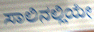
ಸಾಲಿನಲ್ಲಿಯೇ